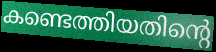
കണ്ടെത്തിയതിന്റെ